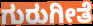
ಗುರುಗೀತೆ